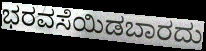
ಭರವಸೆಯಿಡಬಾರದು